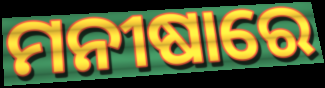
ମନୀଷାରେ